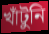
খাঁটুনি